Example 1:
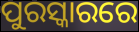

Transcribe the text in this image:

ପୁରସ୍କାରରେ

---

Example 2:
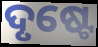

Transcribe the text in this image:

ଦୃଷ୍ଟେ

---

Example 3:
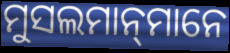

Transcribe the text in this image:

ମୁସଲମାନ୍‌ମାନେ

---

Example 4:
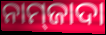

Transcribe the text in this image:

ନାମ୍‍ଜାଦା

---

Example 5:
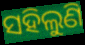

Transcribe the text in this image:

ସହିଲୁଣି